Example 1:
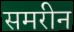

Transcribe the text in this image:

समरीन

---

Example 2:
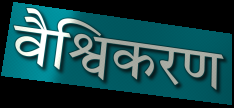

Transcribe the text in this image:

वैश्विकरण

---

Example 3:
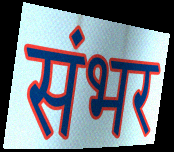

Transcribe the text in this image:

संभर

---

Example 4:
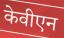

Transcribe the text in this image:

केवीएन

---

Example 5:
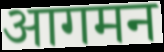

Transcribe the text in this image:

आगमन